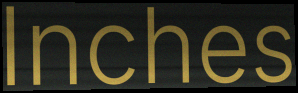
Inches